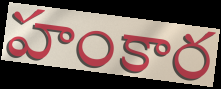
హంకార